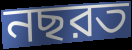
নছরত